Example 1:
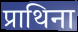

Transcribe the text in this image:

प्राथिना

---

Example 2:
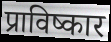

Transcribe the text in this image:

प्राविष्कार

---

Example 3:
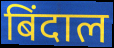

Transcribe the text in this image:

बिंदाल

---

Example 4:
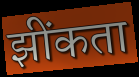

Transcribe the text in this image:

झींकता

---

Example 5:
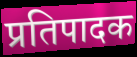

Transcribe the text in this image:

प्रतिपादक